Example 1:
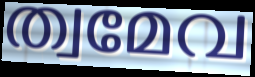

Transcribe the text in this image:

ത്വമേവ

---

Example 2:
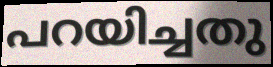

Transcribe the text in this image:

പറയിച്ചതു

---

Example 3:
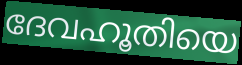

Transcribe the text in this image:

ദേവഹൂതിയെ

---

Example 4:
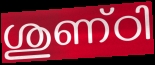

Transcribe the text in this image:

ശുണ്‌ഠി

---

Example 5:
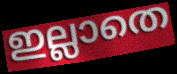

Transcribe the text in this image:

ഇല്ലാതെ